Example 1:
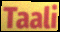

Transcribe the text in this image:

Taali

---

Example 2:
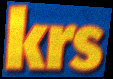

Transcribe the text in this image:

krs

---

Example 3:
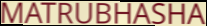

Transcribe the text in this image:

MATRUBHASHA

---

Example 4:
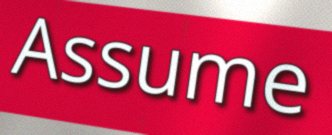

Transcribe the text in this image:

Assume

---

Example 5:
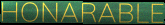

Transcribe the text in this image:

HONARABLE